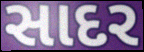
સાદર